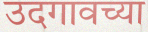
उदगावच्या